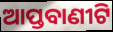
ଆପ୍ତବାଣୀଟି